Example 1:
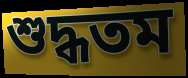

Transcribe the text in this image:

শুদ্ধতম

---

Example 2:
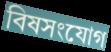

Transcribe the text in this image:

বিষসংযোগ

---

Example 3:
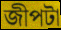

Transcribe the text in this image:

জীপটা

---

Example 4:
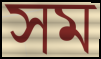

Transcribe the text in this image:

সম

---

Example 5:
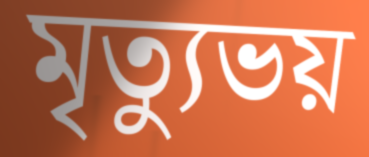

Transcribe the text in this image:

মৃত্যুভয়